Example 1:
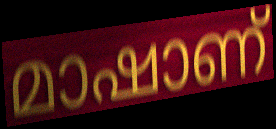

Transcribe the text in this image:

മാഷാണ്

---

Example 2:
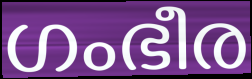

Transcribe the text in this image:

ഗംഭീര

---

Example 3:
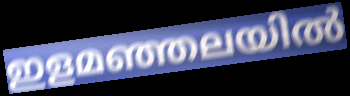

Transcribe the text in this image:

ഇളമഞ്ഞലയിൽ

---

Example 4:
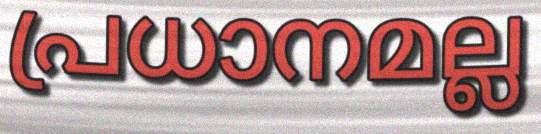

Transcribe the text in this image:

പ്രധാനമല്ല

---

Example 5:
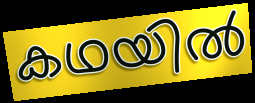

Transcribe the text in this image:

കഥയിൽ